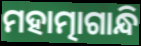
ମହାତ୍ମାଗାନ୍ଧି